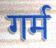
गर्म